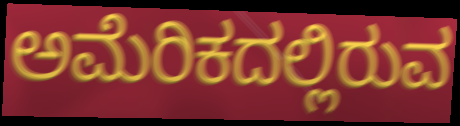
ಅಮೆರಿಕದಲ್ಲಿರುವ